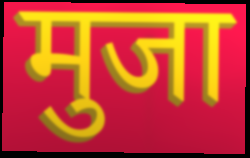
मुजा